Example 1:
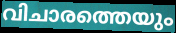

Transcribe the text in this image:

വിചാരത്തെയും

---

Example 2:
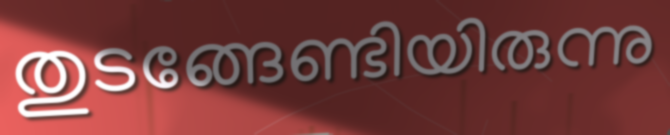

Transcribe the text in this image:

തുടങ്ങേണ്ടിയിരുന്നു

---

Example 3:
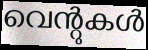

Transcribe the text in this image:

വെന്റുകൾ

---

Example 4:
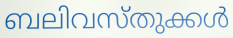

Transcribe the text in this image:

ബലിവസ്തുക്കൾ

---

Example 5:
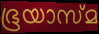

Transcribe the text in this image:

ഭൂയാസ്മ